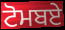
ਟੋਮਬਏ